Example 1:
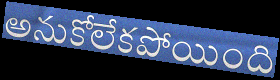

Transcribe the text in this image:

అనుకోలేకపోయింది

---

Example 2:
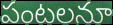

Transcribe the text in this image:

పంటలనూ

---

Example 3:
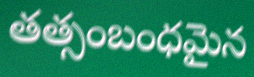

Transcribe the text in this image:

తత్సంబంధమైన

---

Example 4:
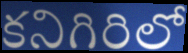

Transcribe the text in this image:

కనిగిరిలో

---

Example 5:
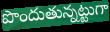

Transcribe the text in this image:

పొందుతున్నట్టుగా